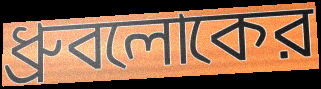
ধ্রুবলোকের